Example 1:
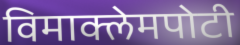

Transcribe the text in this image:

विमाक्लेमपोटी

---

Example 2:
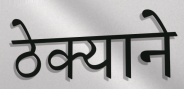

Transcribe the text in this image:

ठेक्याने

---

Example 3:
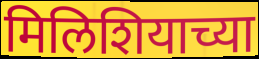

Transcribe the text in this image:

मिलिशियाच्या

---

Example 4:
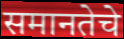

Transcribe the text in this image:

समानतेचे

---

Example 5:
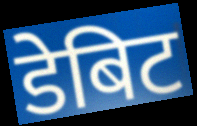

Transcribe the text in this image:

डेबिट